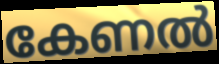
കേണൽ